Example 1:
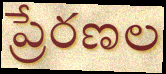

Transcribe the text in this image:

ప్రేరణల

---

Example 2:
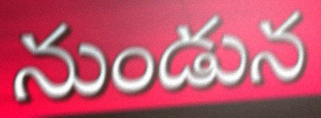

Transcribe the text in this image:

నుండున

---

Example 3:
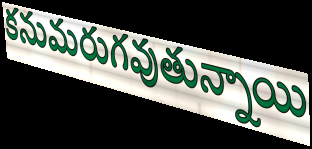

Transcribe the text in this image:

కనుమరుగవుతున్నాయి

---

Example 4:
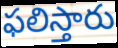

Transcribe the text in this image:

ఫలిస్తారు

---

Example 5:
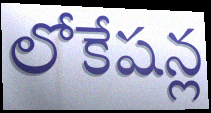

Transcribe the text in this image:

లోకేషన్ల